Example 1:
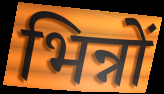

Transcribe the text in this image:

भिन्नों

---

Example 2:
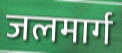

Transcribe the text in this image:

जलमार्ग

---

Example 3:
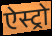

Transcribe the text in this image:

ऐस्ट्रो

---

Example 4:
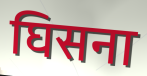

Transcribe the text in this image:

घिसना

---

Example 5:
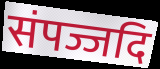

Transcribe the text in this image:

संपज्जदि